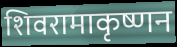
शिवरामाकृष्णन